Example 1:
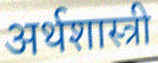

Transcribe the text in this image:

अर्थशास्त्री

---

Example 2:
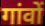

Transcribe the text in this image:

गांवों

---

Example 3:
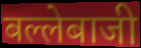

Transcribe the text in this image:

बल्लेबाजी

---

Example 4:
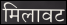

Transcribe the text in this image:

मिलावट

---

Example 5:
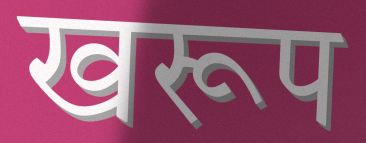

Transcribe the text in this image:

खरूप